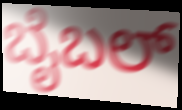
ಬೈಬಲ್